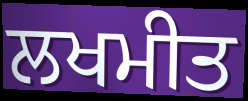
ਲਖਮੀਤ